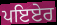
ਪਇਏਰ